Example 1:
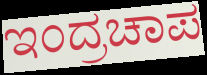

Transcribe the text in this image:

ಇಂದ್ರಚಾಪ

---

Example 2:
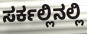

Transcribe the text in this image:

ಸರ್ಕಲ್ಲಿನಲ್ಲಿ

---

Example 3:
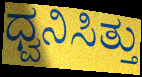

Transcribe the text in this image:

ಧ್ವನಿಸಿತ್ತು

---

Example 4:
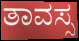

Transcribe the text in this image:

ತಾವಸ್ಸ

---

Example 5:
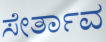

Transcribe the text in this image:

ಸೇರ್ತಾವ